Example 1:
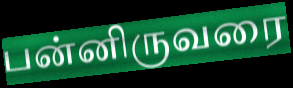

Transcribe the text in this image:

பன்னிருவரை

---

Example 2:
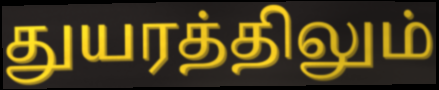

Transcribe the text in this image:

துயரத்திலும்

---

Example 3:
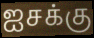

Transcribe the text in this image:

ஐசக்கு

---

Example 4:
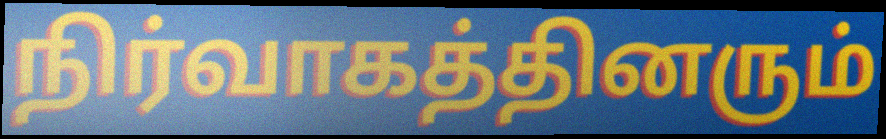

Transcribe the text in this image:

நிர்வாகத்தினரும்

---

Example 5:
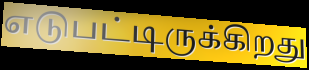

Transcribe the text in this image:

எடுபட்டிருக்கிறது